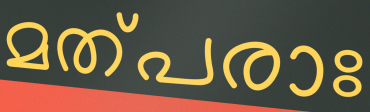
മത്പരാഃ